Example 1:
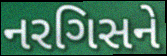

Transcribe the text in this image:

નરગિસને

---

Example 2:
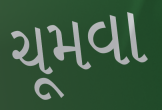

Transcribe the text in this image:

ચૂમવા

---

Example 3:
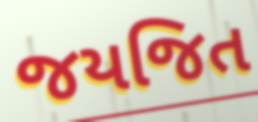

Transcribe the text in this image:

જયજિત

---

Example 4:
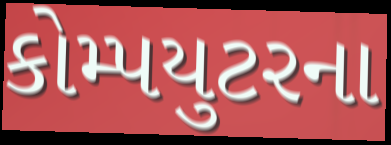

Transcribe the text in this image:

કોમ્પયુટરના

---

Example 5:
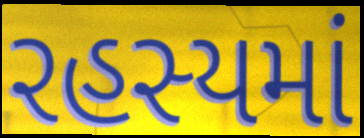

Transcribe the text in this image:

રહસ્યમાં